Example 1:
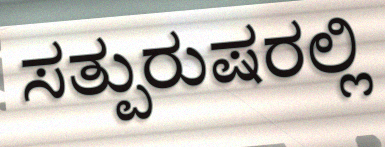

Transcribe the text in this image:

ಸತ್ಪುರುಷರಲ್ಲಿ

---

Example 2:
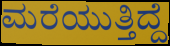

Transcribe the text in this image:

ಮರೆಯುತ್ತಿದ್ದೆ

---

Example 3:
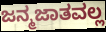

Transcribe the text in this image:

ಜನ್ಮಜಾತವಲ್ಲ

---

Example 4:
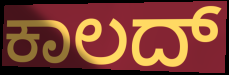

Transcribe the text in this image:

ಕಾಲದ್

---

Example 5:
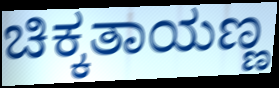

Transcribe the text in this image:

ಚಿಕ್ಕತಾಯಣ್ಣ